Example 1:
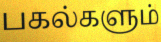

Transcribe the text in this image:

பகல்களும்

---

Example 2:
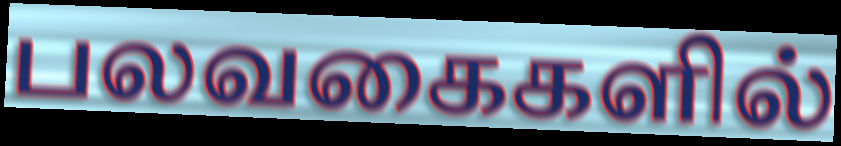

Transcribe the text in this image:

பலவகைகளில்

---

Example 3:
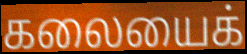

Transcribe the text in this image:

கலையைக்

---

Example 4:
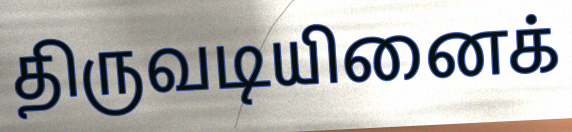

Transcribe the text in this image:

திருவடியினைக்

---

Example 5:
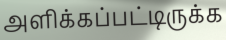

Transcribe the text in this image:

அளிக்கப்பட்டிருக்க